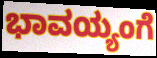
ಭಾವಯ್ಯಂಗೆ